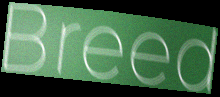
Breed